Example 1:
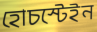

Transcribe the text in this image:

হোচস্টেইন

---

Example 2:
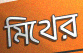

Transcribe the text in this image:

মিথের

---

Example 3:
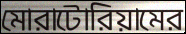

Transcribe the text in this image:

মোরাটোরিয়ামের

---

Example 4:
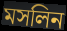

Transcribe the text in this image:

মসলিন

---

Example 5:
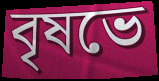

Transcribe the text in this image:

বৃষভে